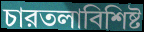
চারতলাবিশিষ্ট